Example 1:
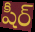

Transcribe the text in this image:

షీర్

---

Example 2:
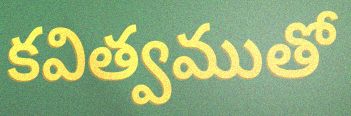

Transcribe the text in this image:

కవిత్వముతో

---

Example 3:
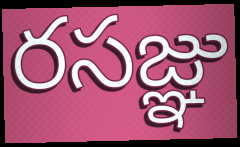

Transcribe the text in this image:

రసజ్ఞు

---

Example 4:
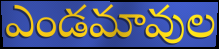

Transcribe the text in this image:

ఎండమావుల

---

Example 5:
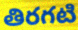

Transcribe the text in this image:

తిరగటి